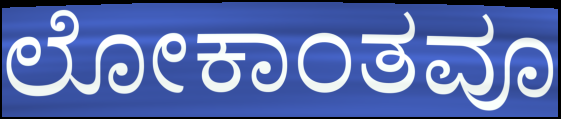
ಲೋಕಾಂತವೂ